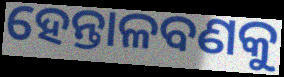
ହେନ୍ତାଳବଣକୁ